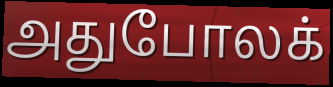
அதுபோலக்